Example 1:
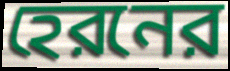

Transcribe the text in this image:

হেরনের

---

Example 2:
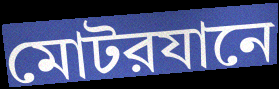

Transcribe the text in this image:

মোটরযানে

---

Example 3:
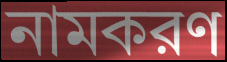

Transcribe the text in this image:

নামকরণ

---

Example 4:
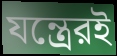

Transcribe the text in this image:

যন্ত্রেরই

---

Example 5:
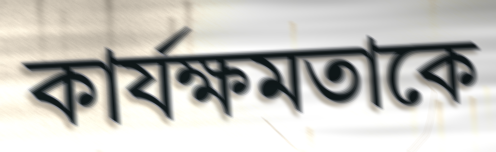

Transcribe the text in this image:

কার্যক্ষমতাকে